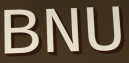
BNU